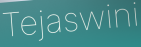
Tejaswini